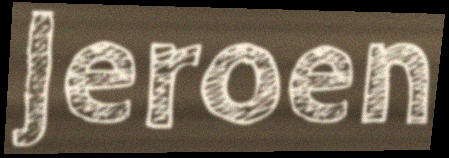
Jeroen